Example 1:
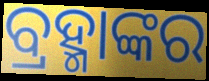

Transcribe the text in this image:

ବ୍ରହ୍ମାଙ୍କର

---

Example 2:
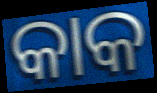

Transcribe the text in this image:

କାକ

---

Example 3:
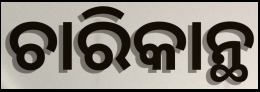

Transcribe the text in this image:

ଚାରିକାନ୍ଥ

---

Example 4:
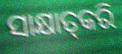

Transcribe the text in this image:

ସାକ୍ଷାତ୍‌କରି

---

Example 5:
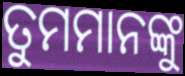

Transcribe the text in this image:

ତୁମମାନଙ୍କୁ